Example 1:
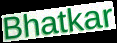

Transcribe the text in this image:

Bhatkar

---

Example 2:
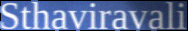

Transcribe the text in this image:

Sthaviravali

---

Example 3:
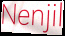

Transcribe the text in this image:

Nenjil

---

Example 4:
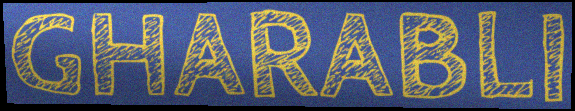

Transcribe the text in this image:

GHARABLI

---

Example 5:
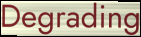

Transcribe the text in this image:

Degrading